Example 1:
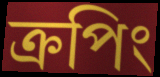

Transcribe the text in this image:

ক্রপিং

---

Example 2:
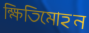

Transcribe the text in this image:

ক্ষিতিমোহন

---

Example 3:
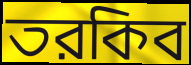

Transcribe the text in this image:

তরকিব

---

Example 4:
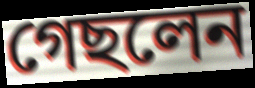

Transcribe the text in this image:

গেছলেন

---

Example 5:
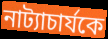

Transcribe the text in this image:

নাট্যাচার্যকে